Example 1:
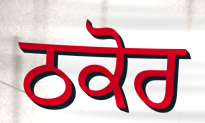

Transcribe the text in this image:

ਠਕੋਰ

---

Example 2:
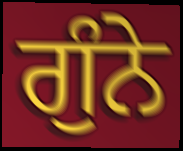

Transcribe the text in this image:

ਗੁੰਨੇ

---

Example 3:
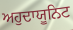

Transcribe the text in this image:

ਅਹੁਦਾਯੂਨਿਟ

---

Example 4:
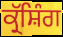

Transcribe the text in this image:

ਕ੍ਰੱਸ਼ਿੰਗ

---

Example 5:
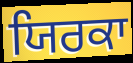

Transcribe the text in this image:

ਯਿਰਕਾ